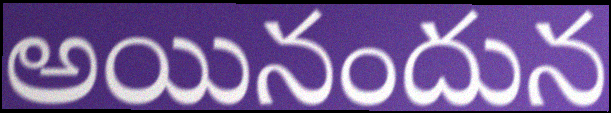
అయినందున